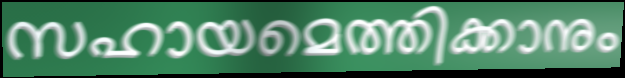
സഹായമെത്തിക്കാനും